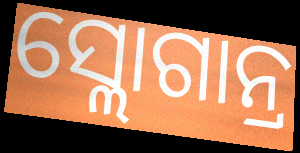
ସ୍ଲୋଗାନ୍ର